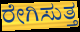
ರೇಗಿಸುತ್ತ